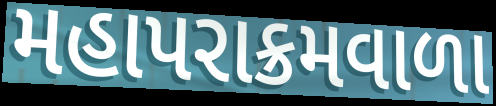
મહાપરાક્રમવાળા